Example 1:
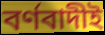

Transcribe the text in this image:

বর্ণবাদীই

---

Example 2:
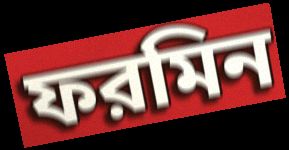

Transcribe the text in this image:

ফরমিন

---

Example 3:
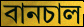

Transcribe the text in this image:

বানচাল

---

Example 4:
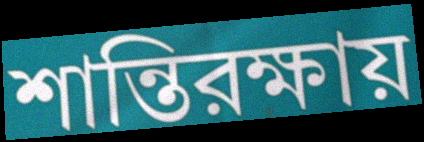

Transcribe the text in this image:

শান্তিরক্ষায়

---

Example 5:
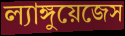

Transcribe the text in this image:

ল্যাঙ্গুয়েজেস